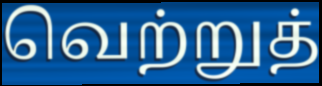
வெற்றுத்